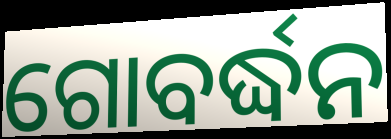
ଗୋବର୍ଦ୍ଧନ